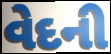
વેદની